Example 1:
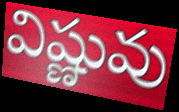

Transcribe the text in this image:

విష్ణువు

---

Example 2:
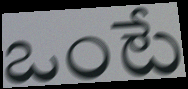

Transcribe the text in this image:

ఒంటే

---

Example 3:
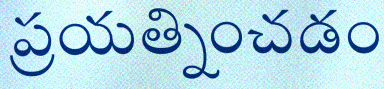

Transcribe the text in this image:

ప్రయత్నించడం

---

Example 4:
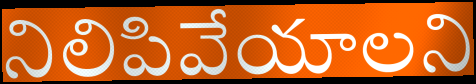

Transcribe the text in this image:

నిలిపివేయాలని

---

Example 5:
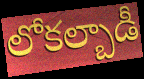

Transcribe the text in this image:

లోకల్బాడీ